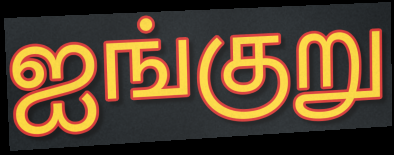
ஐங்குறு